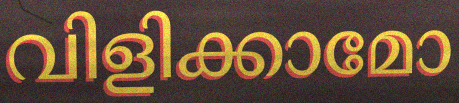
വിളിക്കാമോ